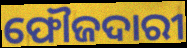
ଫୌଜଦାରୀ